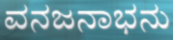
ವನಜನಾಭನು